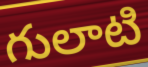
గులాటి